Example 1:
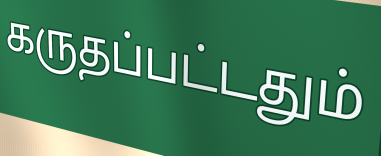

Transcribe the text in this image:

கருதப்பட்டதும்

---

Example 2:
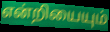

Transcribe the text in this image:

என்றியையும்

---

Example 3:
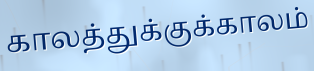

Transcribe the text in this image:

காலத்துக்குக்காலம்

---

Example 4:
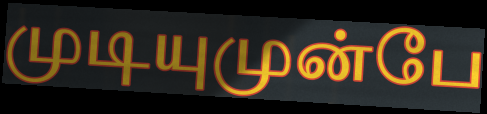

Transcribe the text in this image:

முடியுமுன்பே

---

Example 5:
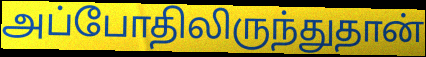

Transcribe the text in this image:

அப்போதிலிருந்துதான்